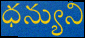
ధన్యుని